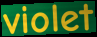
violet